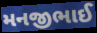
મનજીભાઈ